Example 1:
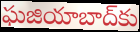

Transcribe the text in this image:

ఘజియాబాద్‌కు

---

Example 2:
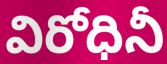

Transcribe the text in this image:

విరోధినీ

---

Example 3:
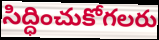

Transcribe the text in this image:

సిద్ధించుకోగలరు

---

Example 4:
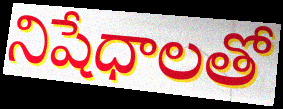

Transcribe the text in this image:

నిషేధాలతో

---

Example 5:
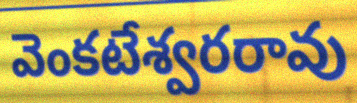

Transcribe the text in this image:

వెంకటేశ్వరరావు